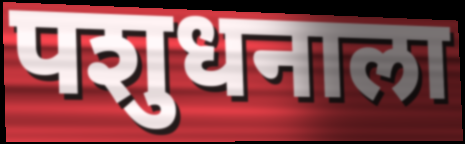
पशुधनाला